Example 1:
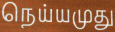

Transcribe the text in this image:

நெய்யமுது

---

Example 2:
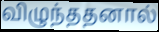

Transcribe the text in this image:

விழுந்ததனால்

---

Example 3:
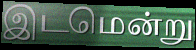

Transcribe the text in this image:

இடமென்று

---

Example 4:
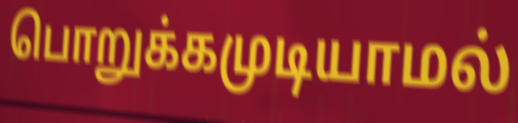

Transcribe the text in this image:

பொறுக்கமுடியாமல்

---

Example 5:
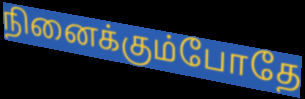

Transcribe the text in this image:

நினைக்கும்போதே